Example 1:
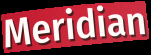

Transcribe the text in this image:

Meridian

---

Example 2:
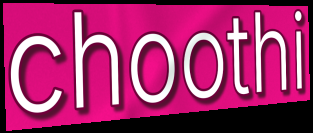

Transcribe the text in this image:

choothi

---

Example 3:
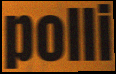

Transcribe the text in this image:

polli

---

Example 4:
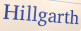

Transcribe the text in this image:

Hillgarth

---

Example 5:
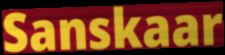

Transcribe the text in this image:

Sanskaar